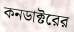
কনডাক্টরের